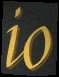
io